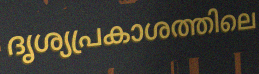
ദൃശ്യപ്രകാശത്തിലെ